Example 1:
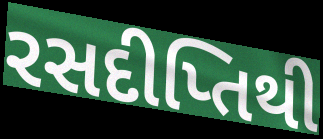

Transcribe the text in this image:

રસદીપ્તિથી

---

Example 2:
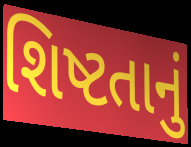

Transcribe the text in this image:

શિષ્ટતાનું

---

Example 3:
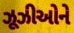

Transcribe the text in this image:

ઝૂઝીઓને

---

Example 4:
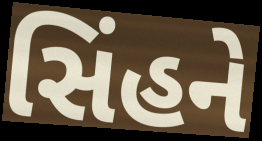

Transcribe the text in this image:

સિંહને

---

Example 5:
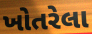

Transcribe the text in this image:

ખોતરેલા